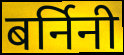
बर्निनी